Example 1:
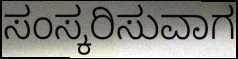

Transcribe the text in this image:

ಸಂಸ್ಕರಿಸುವಾಗ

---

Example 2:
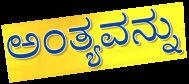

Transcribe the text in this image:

ಅಂತ್ಯವನ್ನು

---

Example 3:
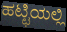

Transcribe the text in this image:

ಹಟ್ಟಿಯಲ್ಲಿ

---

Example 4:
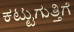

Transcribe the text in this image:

ಕಟ್ಟುಗುತ್ತಿಗೆ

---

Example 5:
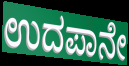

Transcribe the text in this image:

ಉದಪಾನೇ